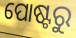
ପୋଷ୍ଟରୁ